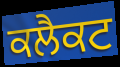
ਕਲੈਕਟ